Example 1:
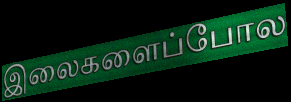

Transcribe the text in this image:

இலைகளைப்போல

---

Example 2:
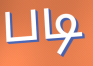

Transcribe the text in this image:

படி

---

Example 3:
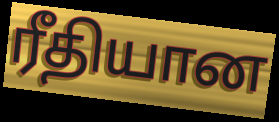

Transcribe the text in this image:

ரீதியான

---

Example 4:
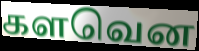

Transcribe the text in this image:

களவென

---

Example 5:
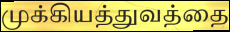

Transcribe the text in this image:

முக்கியத்துவத்தை